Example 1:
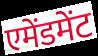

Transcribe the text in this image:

एमेंडमेंट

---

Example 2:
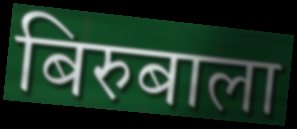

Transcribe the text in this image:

बिरुबाला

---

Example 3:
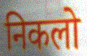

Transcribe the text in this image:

निकलो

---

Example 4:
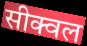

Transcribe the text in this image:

सीक्वल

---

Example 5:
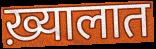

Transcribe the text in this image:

ख़्यालात